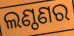
ଲଣ୍ଠଣର